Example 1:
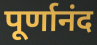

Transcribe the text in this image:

पूर्णानंद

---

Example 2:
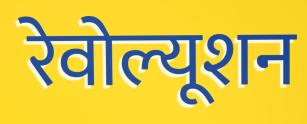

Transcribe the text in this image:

रेवोल्यूशन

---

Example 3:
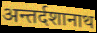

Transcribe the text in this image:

अन्तर्दशानाथ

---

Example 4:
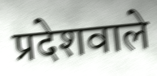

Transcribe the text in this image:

प्रदेशवाले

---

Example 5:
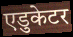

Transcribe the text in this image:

एडुकेटर